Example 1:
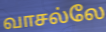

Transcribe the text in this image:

வாசல்லே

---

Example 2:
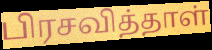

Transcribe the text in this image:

பிரசவித்தாள்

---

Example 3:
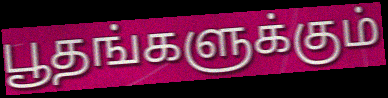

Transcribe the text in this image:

பூதங்களுக்கும்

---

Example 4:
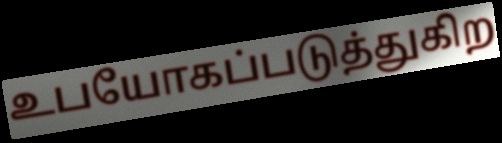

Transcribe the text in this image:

உபயோகப்படுத்துகிற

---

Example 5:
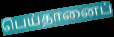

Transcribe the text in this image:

பெய்தானைப்